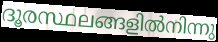
ദൂരസ്ഥലങ്ങളിൽനിന്നു